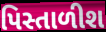
પિસ્તાળીશ